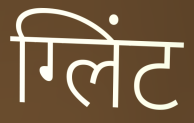
ग्लिंट